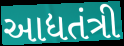
આદ્યતંત્રી